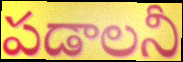
పడాలనీ